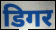
डिगर